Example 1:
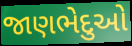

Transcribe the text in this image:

જાણભેદુઓ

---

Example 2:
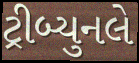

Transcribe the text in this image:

ટ્રીબ્યુનલે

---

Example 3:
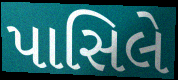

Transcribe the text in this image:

પાસિલે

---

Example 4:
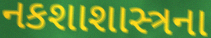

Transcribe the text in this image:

નકશાશાસ્ત્રના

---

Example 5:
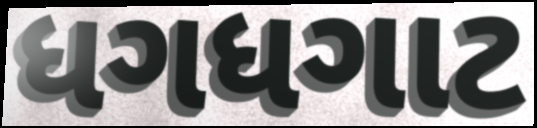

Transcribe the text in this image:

ધગધગાટ